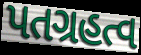
પતગ્રહત્વ